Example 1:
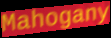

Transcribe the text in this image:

Mahogany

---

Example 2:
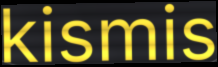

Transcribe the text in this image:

kismis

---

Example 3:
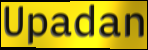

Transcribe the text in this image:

Upadan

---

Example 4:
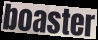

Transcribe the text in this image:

boaster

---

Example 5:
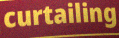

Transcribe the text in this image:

curtailing